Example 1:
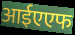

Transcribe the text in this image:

आईएएफ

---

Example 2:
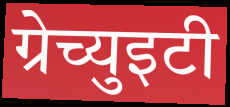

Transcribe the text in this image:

ग्रेच्युइटी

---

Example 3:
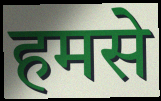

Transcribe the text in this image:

हमसे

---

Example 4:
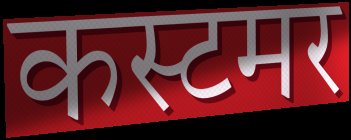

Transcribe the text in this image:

कस्टमर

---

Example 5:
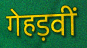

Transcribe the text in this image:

गेहड़वीं